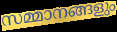
സമ്മാനങ്ങളും